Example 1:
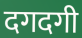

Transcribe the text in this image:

दगदगी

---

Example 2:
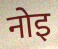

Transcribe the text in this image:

नोइ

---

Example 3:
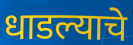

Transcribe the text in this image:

धाडल्याचे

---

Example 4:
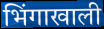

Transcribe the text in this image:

भिंगाखाली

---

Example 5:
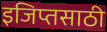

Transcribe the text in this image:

इजिप्तसाठी